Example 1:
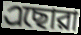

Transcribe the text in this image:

এছোৱা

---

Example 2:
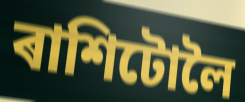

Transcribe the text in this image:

ৰাশিটোলৈ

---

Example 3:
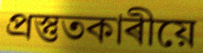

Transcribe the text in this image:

প্ৰস্তুতকাৰীয়ে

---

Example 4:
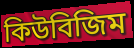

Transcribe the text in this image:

কিউবিজিম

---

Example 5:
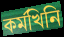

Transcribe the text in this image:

কৰ্মখিনি